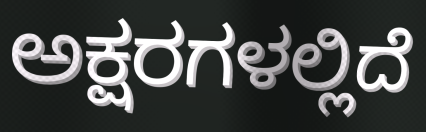
ಅಕ್ಷರಗಳಲ್ಲಿದೆ